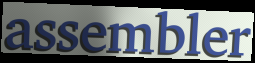
assembler